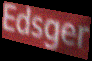
Edsger